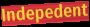
Indepedent